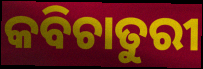
କବିଚାତୁରୀ